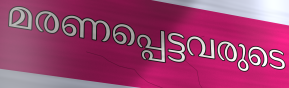
മരണപ്പെട്ടവരുടെ